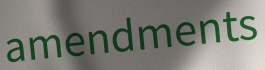
amendments